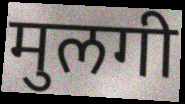
मुलगी